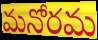
మనోరమ